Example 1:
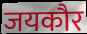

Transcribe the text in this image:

जयकौर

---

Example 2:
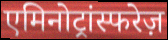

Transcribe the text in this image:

एमिनोट्रांस्फरेज़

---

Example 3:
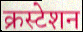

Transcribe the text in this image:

क्रस्टेशन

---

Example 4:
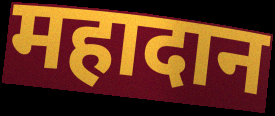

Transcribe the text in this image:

महादान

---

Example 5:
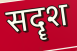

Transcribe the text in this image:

सदॄश